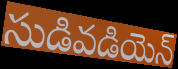
సుడివడియెన్